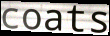
coats